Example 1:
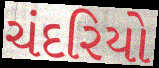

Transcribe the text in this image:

ચંદરિયો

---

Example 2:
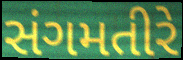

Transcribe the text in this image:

સંગમતીરે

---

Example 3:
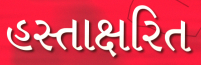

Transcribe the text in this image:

હસ્તાક્ષરિત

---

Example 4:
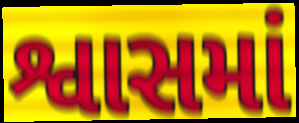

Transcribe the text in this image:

શ્વાસમાં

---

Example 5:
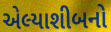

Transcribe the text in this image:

એલ્યાશીબનો